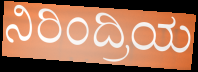
ನಿರಿಂದ್ರಿಯ